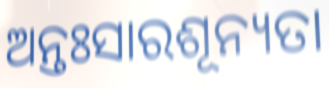
ଅନ୍ତଃସାରଶୂନ୍ୟତା